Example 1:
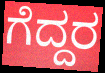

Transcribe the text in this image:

ಗೆದ್ದರ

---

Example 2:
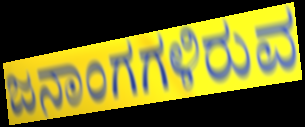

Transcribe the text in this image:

ಜನಾಂಗಗಳಿರುವ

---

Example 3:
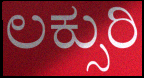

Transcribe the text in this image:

ಲಕ್ಸುರಿ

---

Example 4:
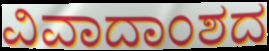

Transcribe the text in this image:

ವಿವಾದಾಂಶದ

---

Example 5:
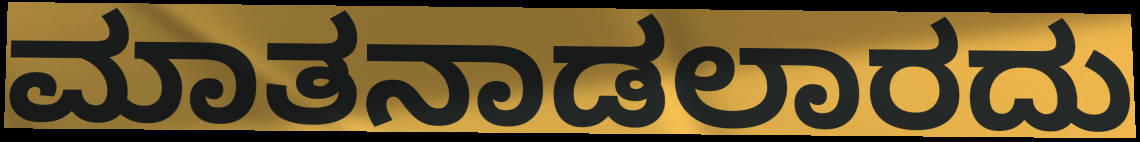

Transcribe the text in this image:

ಮಾತನಾಡಲಾರದು